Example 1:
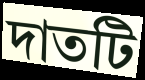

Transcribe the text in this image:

দাতটি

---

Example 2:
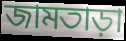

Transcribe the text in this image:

জামতাড়া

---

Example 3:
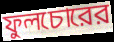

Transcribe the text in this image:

ফুলচোরের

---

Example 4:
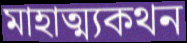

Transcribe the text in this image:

মাহাত্ম্যকথন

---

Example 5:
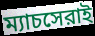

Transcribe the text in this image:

ম্যাচসেরাই